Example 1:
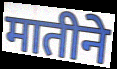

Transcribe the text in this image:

मातीने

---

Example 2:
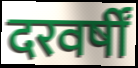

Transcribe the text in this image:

दरवर्षीं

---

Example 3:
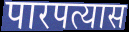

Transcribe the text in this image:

पारपत्यास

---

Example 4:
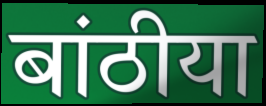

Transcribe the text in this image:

बांठीया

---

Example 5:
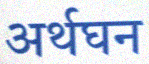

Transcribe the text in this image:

अर्थघन